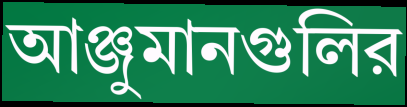
আঞ্জুমানগুলির